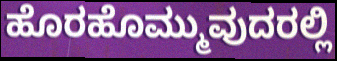
ಹೊರಹೊಮ್ಮುವುದರಲ್ಲಿ